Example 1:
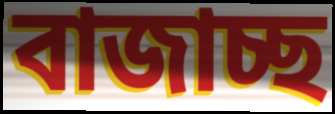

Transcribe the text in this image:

বাজাচ্ছ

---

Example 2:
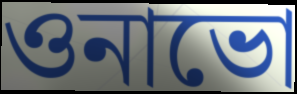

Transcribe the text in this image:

ওনাভো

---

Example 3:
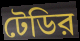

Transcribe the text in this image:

টেডির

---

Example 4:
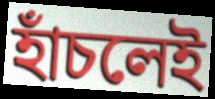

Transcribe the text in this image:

হাঁচলেই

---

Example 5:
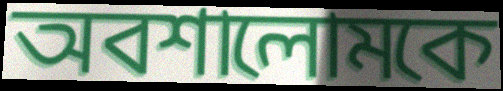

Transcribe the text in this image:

অবশালোমকে